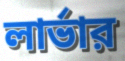
লার্ভার